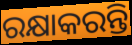
ରକ୍ଷାକରନ୍ତି